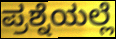
ಪ್ರಶ್ನೆಯಲ್ಲೆ